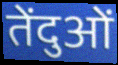
तेंदुओं